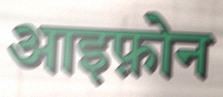
आइफ़ोन